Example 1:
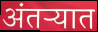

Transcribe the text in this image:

अंतऱ्यात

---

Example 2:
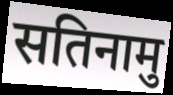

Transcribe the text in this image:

सतिनामु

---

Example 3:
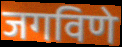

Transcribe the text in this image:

जगविणे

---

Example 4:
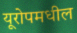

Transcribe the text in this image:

यूरोपमधील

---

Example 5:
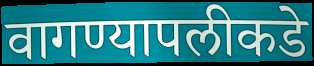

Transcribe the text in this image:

वागण्यापलीकडे